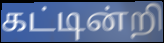
கட்டின்றி